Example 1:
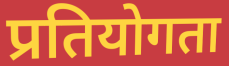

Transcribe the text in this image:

प्रतियोगता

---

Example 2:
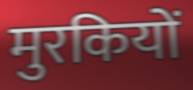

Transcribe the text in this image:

मुरकियों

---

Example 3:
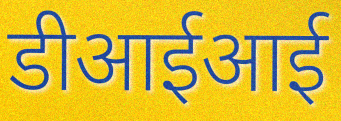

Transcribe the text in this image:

डीआईआई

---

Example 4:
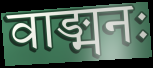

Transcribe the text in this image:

वाङ्मनः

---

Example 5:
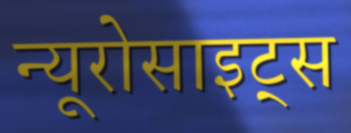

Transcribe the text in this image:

न्यूरोसाइट्स